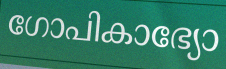
ഗോപികാഭ്യോ